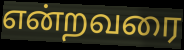
என்றவரை